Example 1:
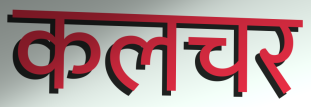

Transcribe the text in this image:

कलचर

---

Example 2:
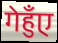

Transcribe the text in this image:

गेहुँए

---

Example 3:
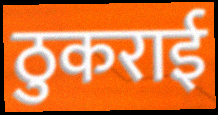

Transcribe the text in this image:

ठुकराई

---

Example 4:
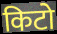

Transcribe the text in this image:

किटो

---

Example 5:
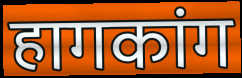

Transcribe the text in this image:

हागकांग